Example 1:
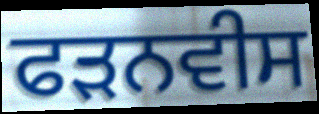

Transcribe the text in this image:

ਫੜਨਵੀਸ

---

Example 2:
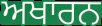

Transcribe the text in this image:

ਅਖਾਰਨ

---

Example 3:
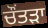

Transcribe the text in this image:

ਚੌਂਤੜਾ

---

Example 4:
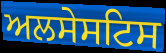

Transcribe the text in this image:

ਅਲਸੇਸਟਿਸ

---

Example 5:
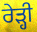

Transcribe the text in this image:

ਰੇੜ੍ਹੀ